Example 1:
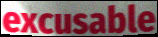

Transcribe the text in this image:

excusable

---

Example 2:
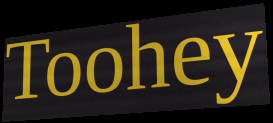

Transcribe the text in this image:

Toohey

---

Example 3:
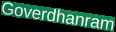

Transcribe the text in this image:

Goverdhanram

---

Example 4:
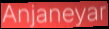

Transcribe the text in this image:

Anjaneyar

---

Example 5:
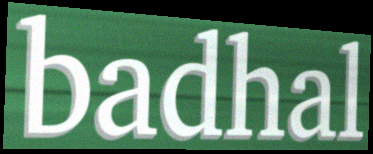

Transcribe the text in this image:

badhal